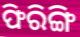
ଫିରିଙ୍ଗି